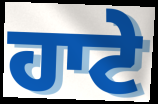
ਹਾਟੇ